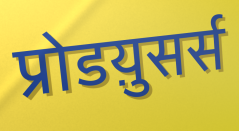
प्रोडय़ुसर्स